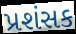
પ્રશંસક